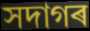
সদাগৰ